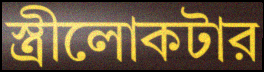
স্ত্রীলোকটার